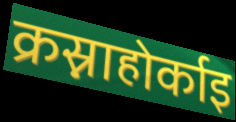
क्रस्नाहोर्काइ